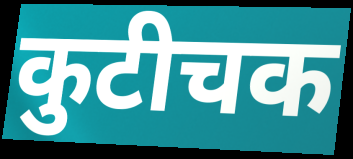
कुटीचक